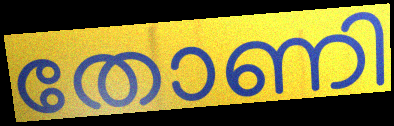
തോണി